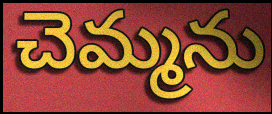
చెమ్మను